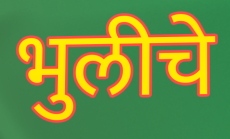
भुलीचे